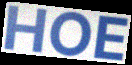
HOE